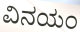
ವಿನಯಂ